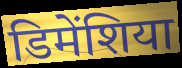
डिमेंशिया